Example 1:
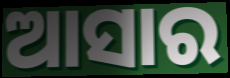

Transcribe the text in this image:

ଆସାର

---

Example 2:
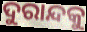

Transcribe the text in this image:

ଦୁରାନ୍ଦକୁ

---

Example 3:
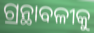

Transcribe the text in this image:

ଗ୍ରନ୍ଥାବଳୀକୁ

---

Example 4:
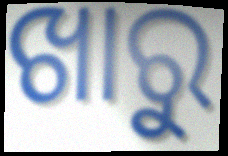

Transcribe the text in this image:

ଖାରୁ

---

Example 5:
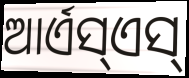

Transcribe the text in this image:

ଆର୍ଏସ୍ଏସ୍